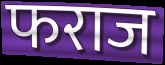
फराज